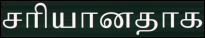
சரியானதாக